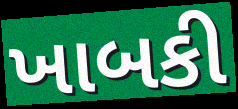
ખાબકી